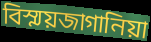
বিস্ময়জাগানিয়া